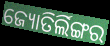
ଜ୍ୟୋତିର୍ଲିଙ୍ଗର